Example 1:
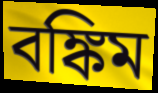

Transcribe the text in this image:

বঙ্কিম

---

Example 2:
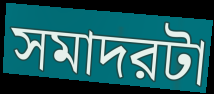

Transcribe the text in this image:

সমাদরটা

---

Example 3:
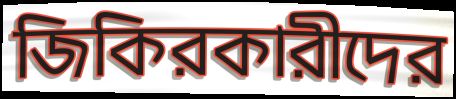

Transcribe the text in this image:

জিকিরকারীদের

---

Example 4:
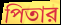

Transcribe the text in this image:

পিতার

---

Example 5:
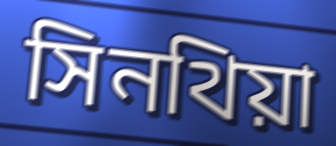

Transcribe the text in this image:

সিনথিয়া